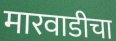
मारवाडीचा